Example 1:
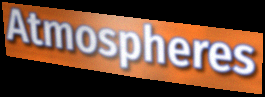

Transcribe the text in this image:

Atmospheres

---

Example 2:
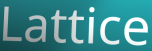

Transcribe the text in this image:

Lattice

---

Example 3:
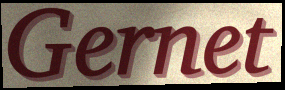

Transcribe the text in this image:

Gernet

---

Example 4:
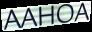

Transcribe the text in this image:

AAHOA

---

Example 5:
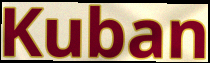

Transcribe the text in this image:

Kuban